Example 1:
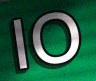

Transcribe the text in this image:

IO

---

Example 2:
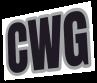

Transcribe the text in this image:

CWG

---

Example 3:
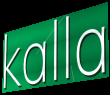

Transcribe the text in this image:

kalla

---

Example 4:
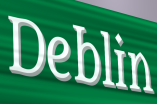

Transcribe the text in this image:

Deblin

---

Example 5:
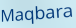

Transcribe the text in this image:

Maqbara